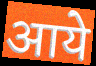
आये